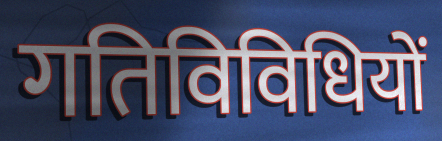
गतिविविधियों